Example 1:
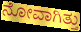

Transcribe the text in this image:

ನೋವಾಗಿತ್ತು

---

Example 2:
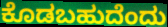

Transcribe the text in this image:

ಕೊಡಬಹುದೆಂದು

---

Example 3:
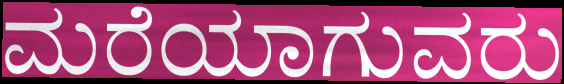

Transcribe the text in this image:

ಮರೆಯಾಗುವರು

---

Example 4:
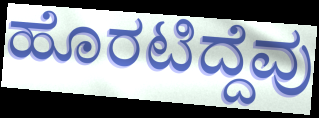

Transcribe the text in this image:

ಹೊರಟಿದ್ದೆವು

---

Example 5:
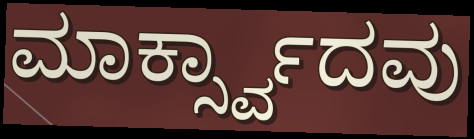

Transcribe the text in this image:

ಮಾರ್ಕ್ಸ್ವಾದವು